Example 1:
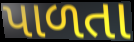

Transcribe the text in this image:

પાળતા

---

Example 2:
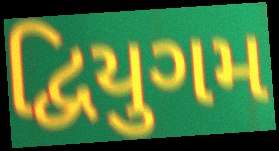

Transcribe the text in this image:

દ્વિયુગમ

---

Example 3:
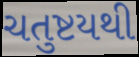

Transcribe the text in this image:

ચતુષ્ટયથી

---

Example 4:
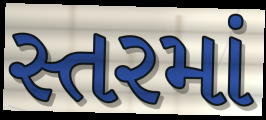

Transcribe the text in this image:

સ્તરમાં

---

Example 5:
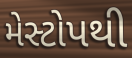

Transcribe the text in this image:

મેસ્ટોપથી